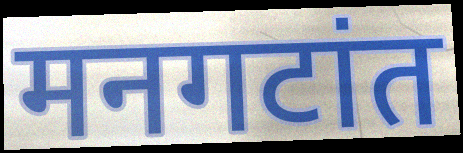
मनगटांत